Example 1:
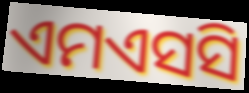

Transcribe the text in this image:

ଏମଏସସି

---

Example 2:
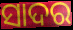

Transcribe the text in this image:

ସାଦର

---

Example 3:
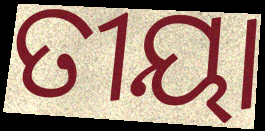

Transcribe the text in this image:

ତୀୟା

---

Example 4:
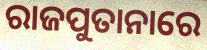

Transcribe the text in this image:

ରାଜପୁତାନାରେ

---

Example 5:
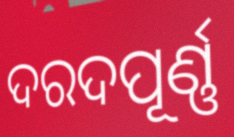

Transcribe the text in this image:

ଦରଦପୂର୍ଣ୍ଣ